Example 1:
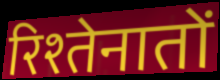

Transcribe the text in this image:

रिश्तेनातों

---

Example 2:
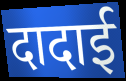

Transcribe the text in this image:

दादाई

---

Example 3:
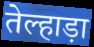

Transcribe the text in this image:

तेल्हाड़ा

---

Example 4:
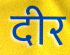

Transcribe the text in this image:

दीर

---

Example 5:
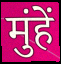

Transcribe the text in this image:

मुंहें